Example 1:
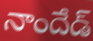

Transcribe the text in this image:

నాందేడ్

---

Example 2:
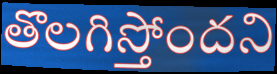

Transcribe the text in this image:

తొలగిస్తోందని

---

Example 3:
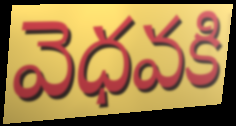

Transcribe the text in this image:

వెధవకి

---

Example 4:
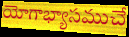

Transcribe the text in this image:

యోగాభ్యాసముచే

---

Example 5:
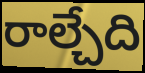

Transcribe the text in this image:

రాల్చేది